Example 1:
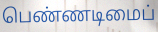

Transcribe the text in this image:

பெண்ணடிமைப்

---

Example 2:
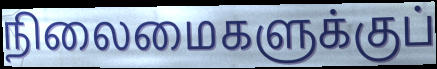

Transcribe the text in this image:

நிலைமைகளுக்குப்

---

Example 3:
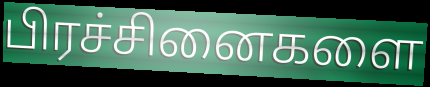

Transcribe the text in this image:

பிரச்சினைகளை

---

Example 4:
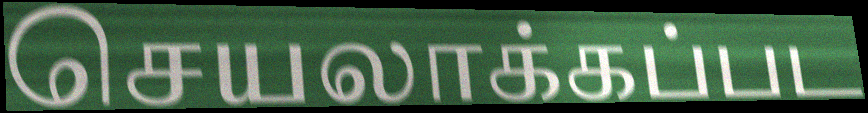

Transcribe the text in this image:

செயலாக்கப்பட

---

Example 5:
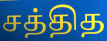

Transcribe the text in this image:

சத்தித